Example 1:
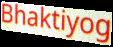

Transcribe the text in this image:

Bhaktiyog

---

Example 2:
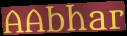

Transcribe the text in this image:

AAbhar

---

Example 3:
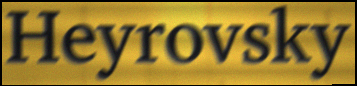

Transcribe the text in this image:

Heyrovsky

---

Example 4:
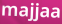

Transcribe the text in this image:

majjaa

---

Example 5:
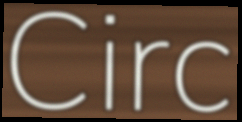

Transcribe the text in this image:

Circ